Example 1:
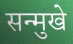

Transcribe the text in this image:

सन्मुखे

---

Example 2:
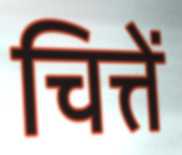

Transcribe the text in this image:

चित्तें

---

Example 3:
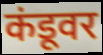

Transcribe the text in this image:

कंडूवर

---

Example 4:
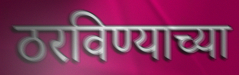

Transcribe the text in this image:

ठरविण्याच्या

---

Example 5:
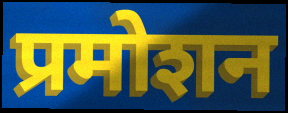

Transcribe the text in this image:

प्रमोशन